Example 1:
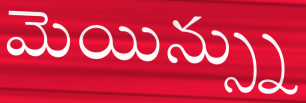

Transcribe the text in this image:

మెయిన్స్ను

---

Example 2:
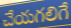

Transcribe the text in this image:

చేయగలిగే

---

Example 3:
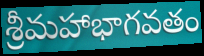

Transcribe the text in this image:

శ్రీమహాభాగవతం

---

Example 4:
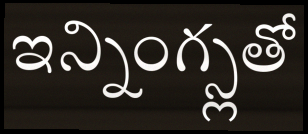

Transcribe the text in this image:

ఇన్నింగ్స్లతో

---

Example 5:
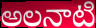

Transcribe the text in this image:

అలనాటి